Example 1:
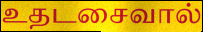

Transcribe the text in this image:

உதடசைவால்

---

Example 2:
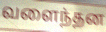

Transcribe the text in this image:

வளைந்தன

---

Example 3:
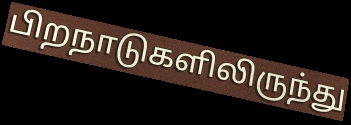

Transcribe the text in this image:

பிறநாடுகளிலிருந்து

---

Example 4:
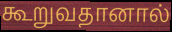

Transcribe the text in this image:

கூறுவதானால்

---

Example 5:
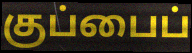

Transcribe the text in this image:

குப்பைப்